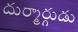
దుర్మార్గుడు